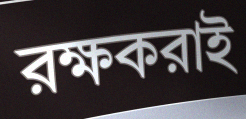
রক্ষকরাই